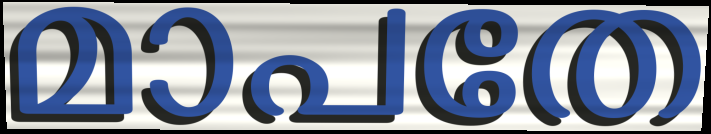
മാപതേ